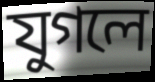
যুগলে